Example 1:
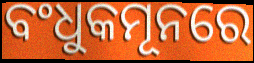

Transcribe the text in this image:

ବଂଧୁକମୂନରେ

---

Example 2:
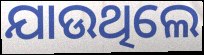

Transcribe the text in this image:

ଯାଉଥିଲେ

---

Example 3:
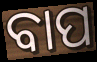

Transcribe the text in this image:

ବାପ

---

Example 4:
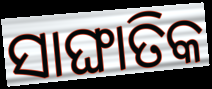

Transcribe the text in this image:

ସାଙ୍ଘାତିକ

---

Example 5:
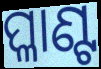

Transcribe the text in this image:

ପ୍ଳାଣ୍ଟ